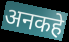
अनकहे